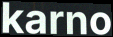
karno